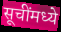
सूचींमध्ये